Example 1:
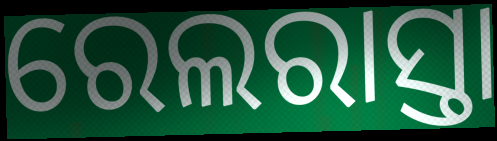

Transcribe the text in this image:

ରେଲରାସ୍ତା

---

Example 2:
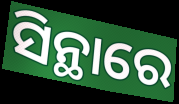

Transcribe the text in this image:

ସିନ୍ଥାରେ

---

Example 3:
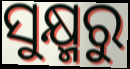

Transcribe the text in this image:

ସୁକ୍ଷ୍ମରୁ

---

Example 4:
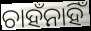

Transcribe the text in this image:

ଚାହଁନାହିଁ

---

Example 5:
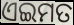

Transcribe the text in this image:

ଏଇମତ